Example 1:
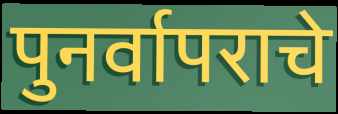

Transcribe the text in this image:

पुनर्वापराचे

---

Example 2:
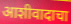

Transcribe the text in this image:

आशीवादाचा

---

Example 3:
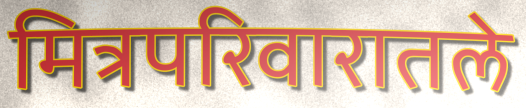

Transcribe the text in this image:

मित्रपरिवारातले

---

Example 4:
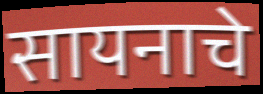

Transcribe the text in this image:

सायनाचे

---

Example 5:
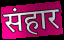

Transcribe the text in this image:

संहार